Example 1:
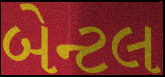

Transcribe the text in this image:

બેન્ટલ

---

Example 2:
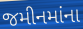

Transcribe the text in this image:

જમીનમાંના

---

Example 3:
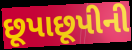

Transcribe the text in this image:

છૂપાછૂપીની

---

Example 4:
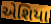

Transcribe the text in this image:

એશિયા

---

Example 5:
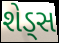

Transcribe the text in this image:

શેડ્સ